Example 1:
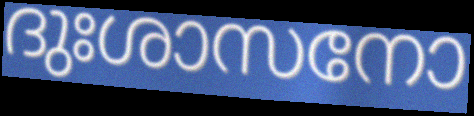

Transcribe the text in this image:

ദുഃശാസനോ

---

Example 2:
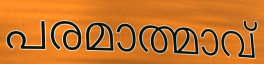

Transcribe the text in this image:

പരമാത്മാവ്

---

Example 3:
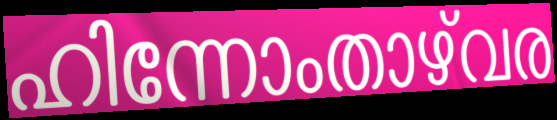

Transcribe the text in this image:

ഹിന്നോംതാഴ്‌വര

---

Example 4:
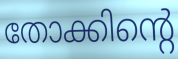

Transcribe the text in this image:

തോക്കിന്റെ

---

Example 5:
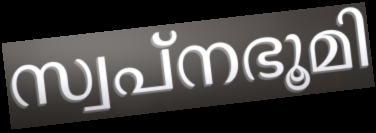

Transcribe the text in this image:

സ്വപ്നഭൂമി